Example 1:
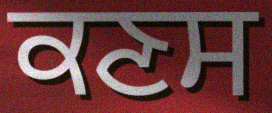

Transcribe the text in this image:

ਕਣਸ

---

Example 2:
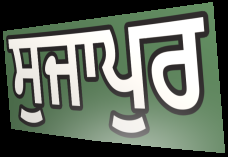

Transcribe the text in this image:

ਸੁਜਾਪੁਰ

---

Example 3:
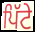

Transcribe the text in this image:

ਪਿੱਟੇ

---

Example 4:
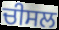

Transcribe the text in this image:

ਚੀਸਲ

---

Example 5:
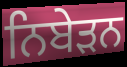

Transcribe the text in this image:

ਨਿਬੇੜਨ